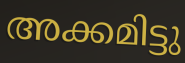
അക്കമിട്ടു